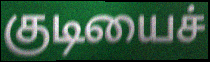
குடியைச்